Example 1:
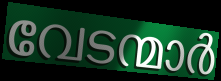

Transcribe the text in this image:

വേടന്മാർ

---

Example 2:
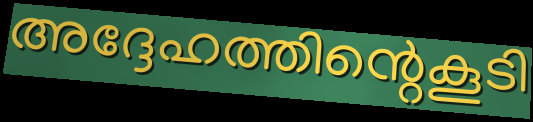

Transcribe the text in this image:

അദ്ദേഹത്തിന്റെകൂടി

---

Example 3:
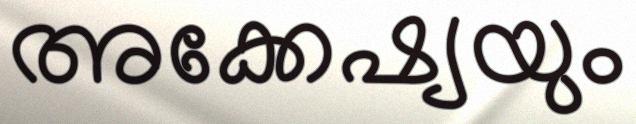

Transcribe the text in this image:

അക്കേഷ്യയും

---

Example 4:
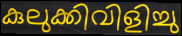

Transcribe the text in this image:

കുലുക്കിവിളിച്ചു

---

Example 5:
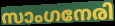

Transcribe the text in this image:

സാംഗനേരി